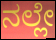
ನಲ್ಲೇ